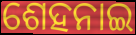
ଶେହନାଇ